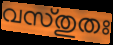
വസ്തുതഃ